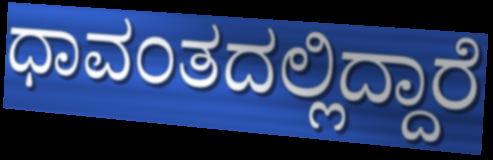
ಧಾವಂತದಲ್ಲಿದ್ದಾರೆ